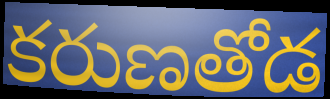
కరుణతోడ